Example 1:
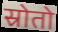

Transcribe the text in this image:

स्रोतो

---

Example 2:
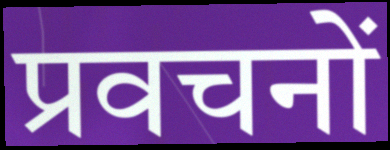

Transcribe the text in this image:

प्रवचनों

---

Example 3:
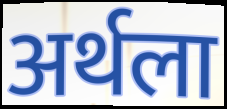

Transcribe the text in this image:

अर्थला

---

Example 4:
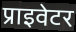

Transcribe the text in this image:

प्राइवेटर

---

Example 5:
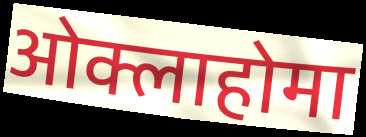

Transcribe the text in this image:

ओक्लाहोमा